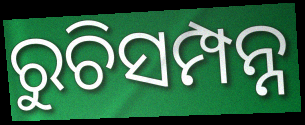
ରୁଚିସମ୍ପନ୍ନ